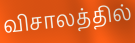
விசாலத்தில்